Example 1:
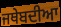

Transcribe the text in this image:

ਜਥੇਬਦੀਆ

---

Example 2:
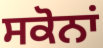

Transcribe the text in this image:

ਸਕੋਨਾਂ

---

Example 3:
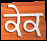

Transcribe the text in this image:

ਕੇਕ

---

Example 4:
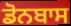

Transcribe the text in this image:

ਡੋਨਬਾਸ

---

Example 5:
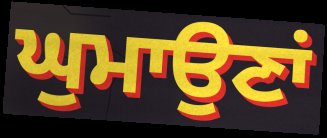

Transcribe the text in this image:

ਘੁਮਾਉਣਾਂ